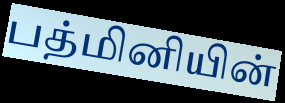
பத்மினியின்